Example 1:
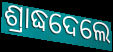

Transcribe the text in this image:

ଶ୍ରାଦ୍ଧଦେଲେ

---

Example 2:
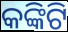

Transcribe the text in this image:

କଙ୍କିଟି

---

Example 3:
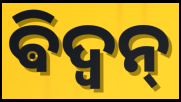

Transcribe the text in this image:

ଵିଦ୍ଵନ୍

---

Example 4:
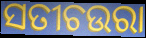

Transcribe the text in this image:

ସତୀଚଉରା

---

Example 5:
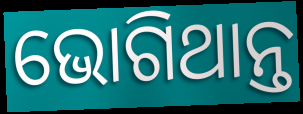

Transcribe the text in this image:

ଭୋଗିଥାନ୍ତ